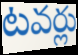
టవర్లు